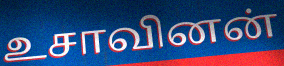
உசாவினன்